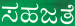
ಸಹಜತೆ